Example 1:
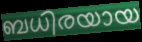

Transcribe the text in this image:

ബധിരയായ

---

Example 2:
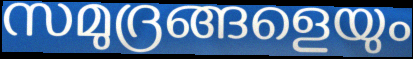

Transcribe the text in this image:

സമുദ്രങ്ങളെയും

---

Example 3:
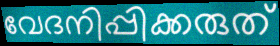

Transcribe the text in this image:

വേദനിപ്പിക്കരുത്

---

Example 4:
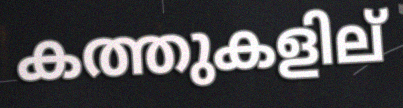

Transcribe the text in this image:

കത്തുകളില്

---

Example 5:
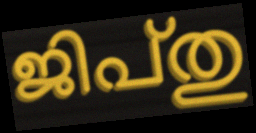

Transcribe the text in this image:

ജിപ്തു